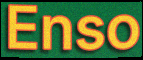
Enso